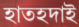
হাতহদাই